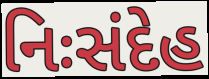
નિઃસંદેહ